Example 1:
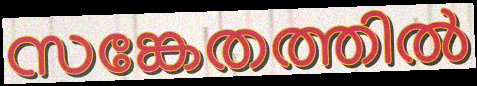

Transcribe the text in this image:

സങ്കേതത്തിൽ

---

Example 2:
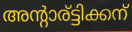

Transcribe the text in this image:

അന്റാര്ട്ടിക്കന്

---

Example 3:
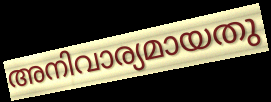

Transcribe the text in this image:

അനിവാര്യമായതു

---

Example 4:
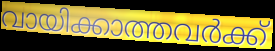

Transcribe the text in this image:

വായിക്കാത്തവർക്ക്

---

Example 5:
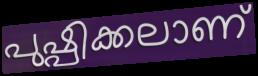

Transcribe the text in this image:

പുഷ്പിക്കലാണ്